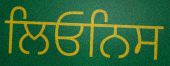
ਲਿਓਨਿਸ